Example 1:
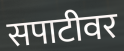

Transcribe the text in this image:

सपाटीवर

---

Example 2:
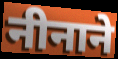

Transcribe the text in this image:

नीनाने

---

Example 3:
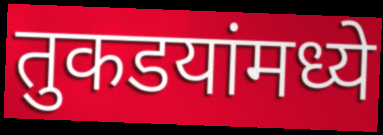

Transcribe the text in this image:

तुकडयांमध्ये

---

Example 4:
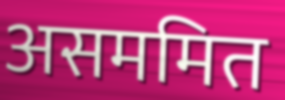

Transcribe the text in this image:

असममित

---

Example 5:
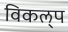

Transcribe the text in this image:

विकल्प